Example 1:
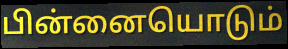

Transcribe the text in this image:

பின்னையொடும்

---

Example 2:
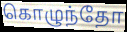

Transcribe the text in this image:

கொழுந்தோ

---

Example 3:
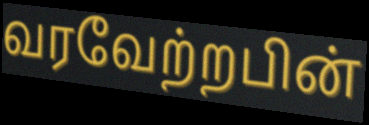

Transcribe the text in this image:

வரவேற்றபின்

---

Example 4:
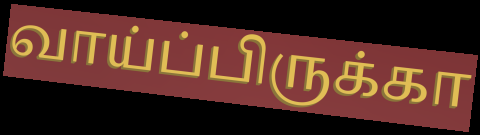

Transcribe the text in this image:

வாய்ப்பிருக்கா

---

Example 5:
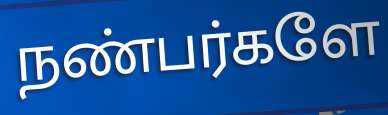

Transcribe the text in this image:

நண்பர்களே